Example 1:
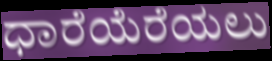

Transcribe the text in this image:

ಧಾರೆಯೆರೆಯಲು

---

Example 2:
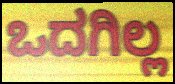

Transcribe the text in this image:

ಒದಗಿಲ್ಲ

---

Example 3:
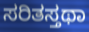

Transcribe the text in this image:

ಸರಿತಸ್ತಥಾ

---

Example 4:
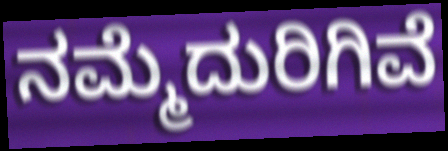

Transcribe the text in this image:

ನಮ್ಮೆದುರಿಗಿವೆ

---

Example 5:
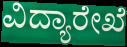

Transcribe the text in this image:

ವಿದ್ಯಾರೇಖೆ